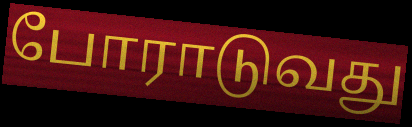
போராடுவது